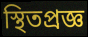
স্থিতপ্রজ্ঞ